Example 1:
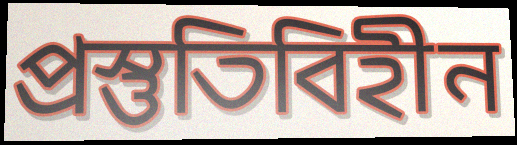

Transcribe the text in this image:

প্রস্তুতিবিহীন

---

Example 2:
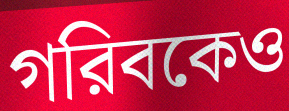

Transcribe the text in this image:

গরিবকেও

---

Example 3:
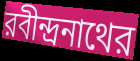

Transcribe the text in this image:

রবীন্দ্রনাথের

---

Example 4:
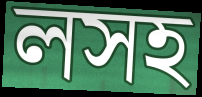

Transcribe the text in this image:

লসহ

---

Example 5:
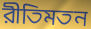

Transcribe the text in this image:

রীতিমতন